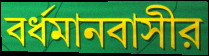
বর্ধমানবাসীর